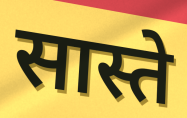
सास्ते